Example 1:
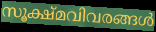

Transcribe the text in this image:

സൂക്ഷ്മവിവരങ്ങൾ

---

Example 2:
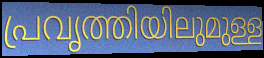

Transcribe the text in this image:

പ്രവൃത്തിയിലുമുള്ള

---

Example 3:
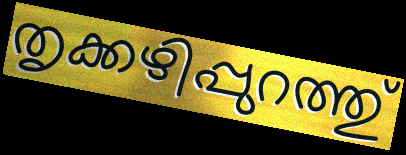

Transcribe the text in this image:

തൃക്കഴിപ്പുറത്തു്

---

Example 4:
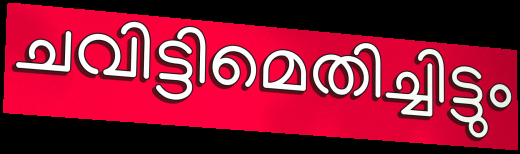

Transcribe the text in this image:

ചവിട്ടിമെതിച്ചിട്ടും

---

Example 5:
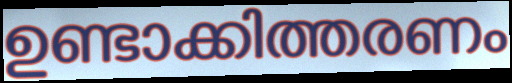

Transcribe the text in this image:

ഉണ്ടാക്കിത്തരണം